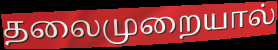
தலைமுறையால்